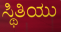
ಸ್ಥಿತಿಯು